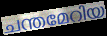
ചന്തമേറിയ